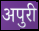
अपुरी